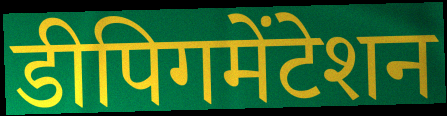
डीपिगमेंटेशन